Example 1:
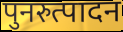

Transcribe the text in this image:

पुनरुत्पादन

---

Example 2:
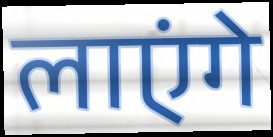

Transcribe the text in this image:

लाएंगे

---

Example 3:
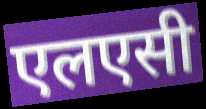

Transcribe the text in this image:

एलएसी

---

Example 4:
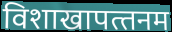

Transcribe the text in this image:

विशाखापत्‍तनम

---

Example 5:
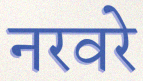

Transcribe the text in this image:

नरवरे